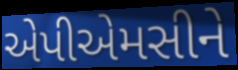
એપીએમસીને